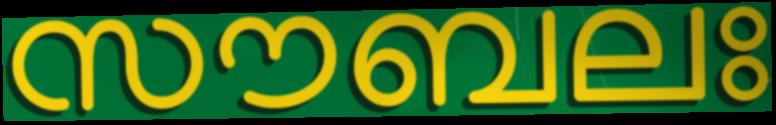
സൗബലഃ